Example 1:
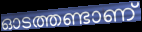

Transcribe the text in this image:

ഓടത്തണ്ടാണ്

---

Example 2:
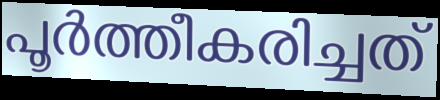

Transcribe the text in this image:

പൂർത്തീകരിച്ചത്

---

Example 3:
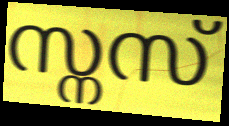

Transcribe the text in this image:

സ്നസ്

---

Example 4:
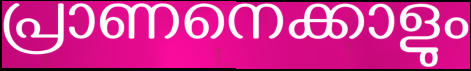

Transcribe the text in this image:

പ്രാണനെക്കാളും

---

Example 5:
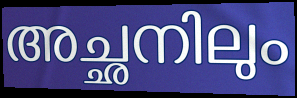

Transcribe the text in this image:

അച്ഛനിലും